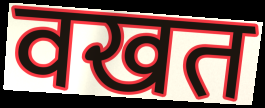
वखत